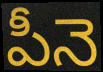
పీనె